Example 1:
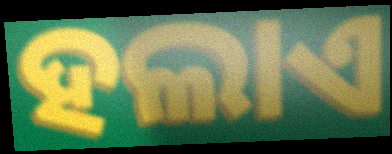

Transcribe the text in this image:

ହଲାଏ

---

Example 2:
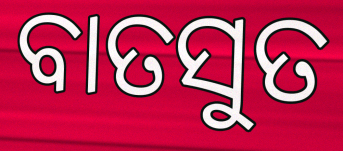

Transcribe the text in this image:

ବାତସୁତ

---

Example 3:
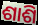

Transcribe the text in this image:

ଶାଶି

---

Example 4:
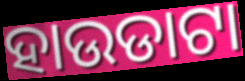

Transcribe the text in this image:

ହାଉଡାଟା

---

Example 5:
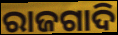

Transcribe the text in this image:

ରାଜଗାଦି